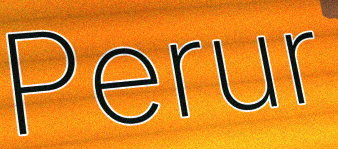
Perur